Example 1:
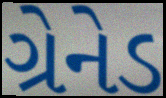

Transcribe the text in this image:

ગ્રેનેડ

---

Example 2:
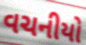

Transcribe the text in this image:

વચનીયો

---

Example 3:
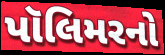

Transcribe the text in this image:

પૉલિમરનો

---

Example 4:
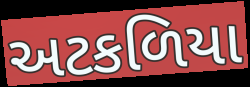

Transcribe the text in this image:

અટકળિયા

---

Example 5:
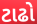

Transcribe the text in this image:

ટાઢો